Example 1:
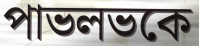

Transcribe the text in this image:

পাভলভকে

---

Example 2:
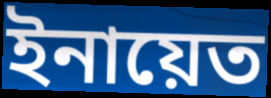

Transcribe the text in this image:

ইনায়েত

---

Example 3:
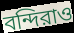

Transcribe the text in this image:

বন্দিরাও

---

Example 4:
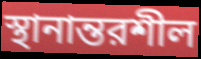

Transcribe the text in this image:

স্থানান্তরশীল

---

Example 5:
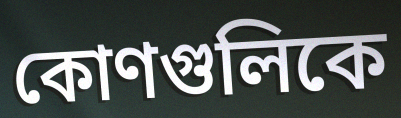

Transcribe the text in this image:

কোণগুলিকে